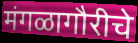
मंगळागौरीचे